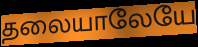
தலையாலேயே